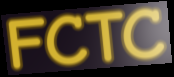
FCTC